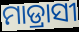
ମାଡ୍ରାସୀ